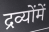
द्रव्योंमें